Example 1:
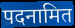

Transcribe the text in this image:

पदनामित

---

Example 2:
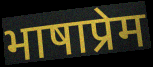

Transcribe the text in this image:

भाषाप्रेम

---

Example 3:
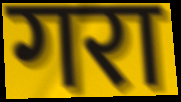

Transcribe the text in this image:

गरा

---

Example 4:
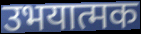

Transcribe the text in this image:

उभयात्मक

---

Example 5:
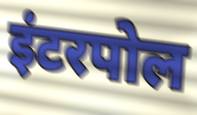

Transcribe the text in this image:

इंटरपोल